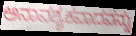
ಅನಾವಶ್ಯಕವಾದವನ್ನು